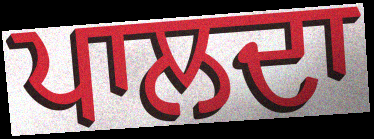
ਪਾਲਦਾ